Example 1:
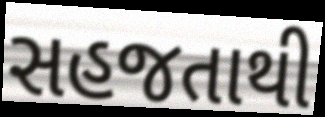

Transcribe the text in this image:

સહજતાથી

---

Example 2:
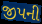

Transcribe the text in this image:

જીપની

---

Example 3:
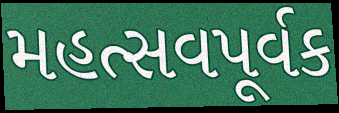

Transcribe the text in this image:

મહત્સવપૂર્વક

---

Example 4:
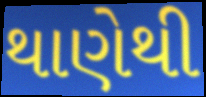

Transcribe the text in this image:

થાણેથી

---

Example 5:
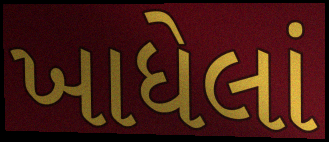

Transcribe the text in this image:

ખાધેલાં